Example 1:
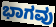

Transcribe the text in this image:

ಭಾಗವು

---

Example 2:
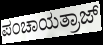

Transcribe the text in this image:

ಪಂಚಾಯತ್ರಾಜ್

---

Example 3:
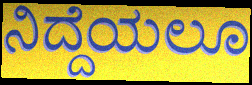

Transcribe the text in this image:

ನಿದ್ದೆಯಲೂ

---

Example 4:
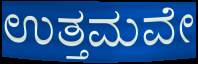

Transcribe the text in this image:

ಉತ್ತಮವೇ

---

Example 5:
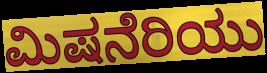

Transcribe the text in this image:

ಮಿಷನೆರಿಯು